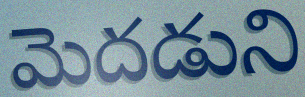
మెదడుని